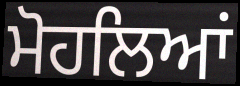
ਮੋਹਲਿਆਂ